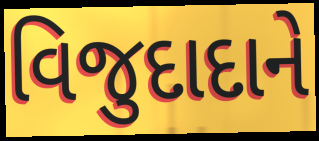
વિજુદાદાને